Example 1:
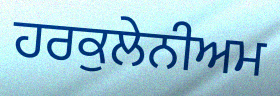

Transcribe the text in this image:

ਹਰਕੁਲੇਨੀਅਮ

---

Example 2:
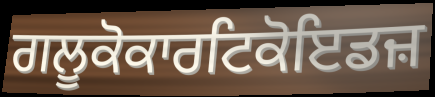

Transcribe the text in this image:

ਗਲੂਕੋਕਾਰਟਿਕੋਇਡਜ਼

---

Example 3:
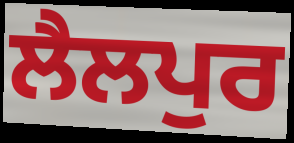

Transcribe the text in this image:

ਲੈਲਪੁਰ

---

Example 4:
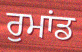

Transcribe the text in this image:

ਰੁਮਾਂਡ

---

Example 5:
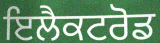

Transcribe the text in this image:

ਇਲੈਕਟਰੋਡ